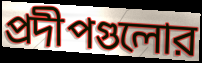
প্রদীপগুলোর